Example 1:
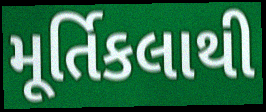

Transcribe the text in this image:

મૂર્તિકલાથી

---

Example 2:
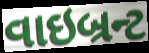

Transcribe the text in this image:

વાઇબ્રન્ટ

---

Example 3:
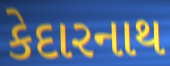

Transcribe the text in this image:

કેદારનાથ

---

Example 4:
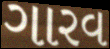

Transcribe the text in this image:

ગારવ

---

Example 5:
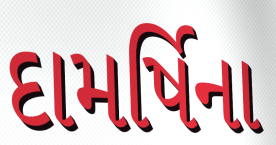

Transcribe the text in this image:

દામર્ષિના